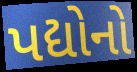
પદ્યોનો